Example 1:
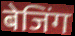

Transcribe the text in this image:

बेजिंग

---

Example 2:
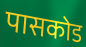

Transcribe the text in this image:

पासकोड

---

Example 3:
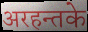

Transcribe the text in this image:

अरहन्तके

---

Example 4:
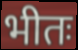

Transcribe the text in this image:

भीतः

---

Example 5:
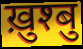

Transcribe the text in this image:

ख़ुश्बु